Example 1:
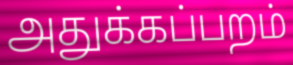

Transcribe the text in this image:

அதுக்கப்பறம்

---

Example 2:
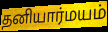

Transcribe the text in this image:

தனியார்மயம்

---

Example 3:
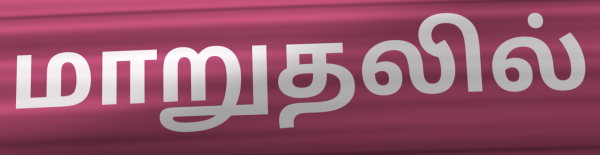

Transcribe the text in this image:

மாறுதலில்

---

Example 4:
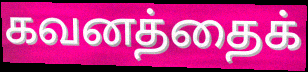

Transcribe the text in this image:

கவனத்தைக்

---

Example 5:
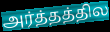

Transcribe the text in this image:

அர்த்தத்தில